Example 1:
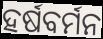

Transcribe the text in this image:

ହର୍ଷବର୍ମନ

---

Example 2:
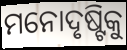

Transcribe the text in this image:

ମନୋଦୃଷ୍ଟିକୁ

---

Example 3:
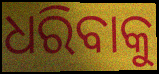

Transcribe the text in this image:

ଧରିବାକୁ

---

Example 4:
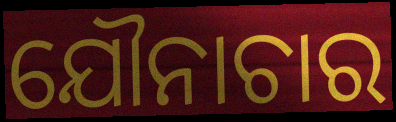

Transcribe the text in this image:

ଯୌନାଚାର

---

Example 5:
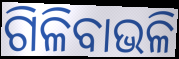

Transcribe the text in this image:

ଗିଳିବାଭଳି